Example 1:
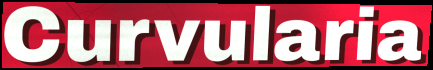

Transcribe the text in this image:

Curvularia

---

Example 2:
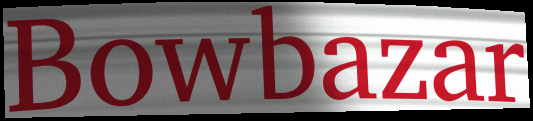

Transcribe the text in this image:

Bowbazar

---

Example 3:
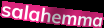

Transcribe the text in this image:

salahemma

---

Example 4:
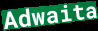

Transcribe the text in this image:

Adwaita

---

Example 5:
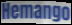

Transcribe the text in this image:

Hemango